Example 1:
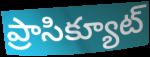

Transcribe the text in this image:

ప్రాసిక్యూట్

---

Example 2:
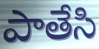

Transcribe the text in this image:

పాతేసి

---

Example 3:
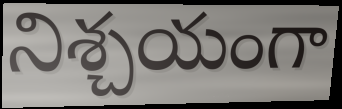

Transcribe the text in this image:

నిశ్చయంగా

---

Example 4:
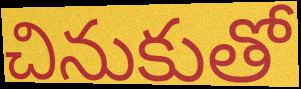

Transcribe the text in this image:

చినుకుతో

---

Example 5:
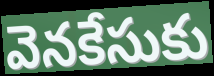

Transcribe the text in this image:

వెనకేసుకు